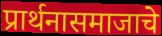
प्रार्थनासमाजाचे